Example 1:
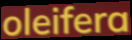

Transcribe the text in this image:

oleifera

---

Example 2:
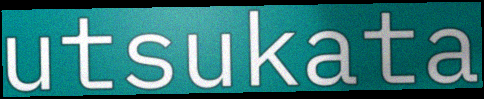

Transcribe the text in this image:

utsukata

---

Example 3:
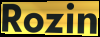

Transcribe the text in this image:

Rozin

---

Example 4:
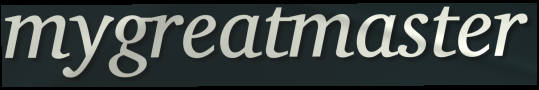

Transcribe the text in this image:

mygreatmaster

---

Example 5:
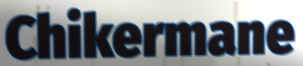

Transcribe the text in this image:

Chikermane